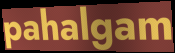
pahalgam